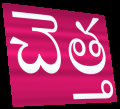
చెత్త